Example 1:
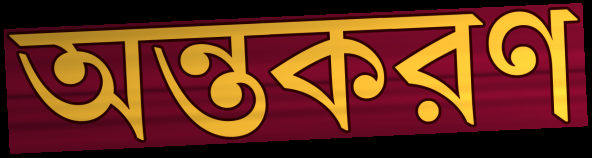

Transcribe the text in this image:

অন্তকরণ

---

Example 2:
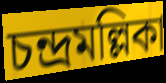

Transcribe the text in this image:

চন্দ্রমল্লিকা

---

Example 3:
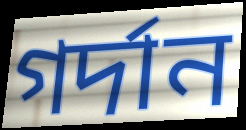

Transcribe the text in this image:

গর্দান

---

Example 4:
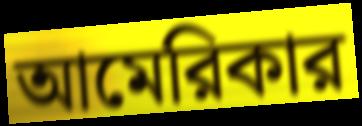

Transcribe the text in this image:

আমেরিকার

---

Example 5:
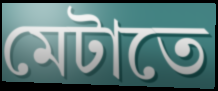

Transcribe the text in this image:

মেটাতে